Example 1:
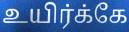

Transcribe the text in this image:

உயிர்க்கே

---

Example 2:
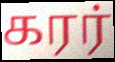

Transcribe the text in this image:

கரர்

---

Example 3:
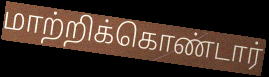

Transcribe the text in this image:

மாற்றிக்கொண்டார்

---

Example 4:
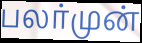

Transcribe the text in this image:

பலர்முன்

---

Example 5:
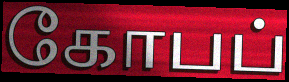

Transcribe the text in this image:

கோபப்